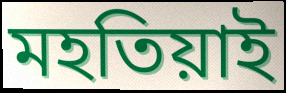
মহতিয়াই